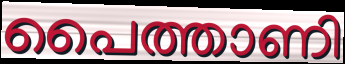
പൈത്താണി